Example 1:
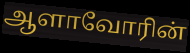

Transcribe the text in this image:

ஆளாவோரின்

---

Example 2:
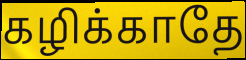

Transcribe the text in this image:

கழிக்காதே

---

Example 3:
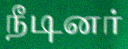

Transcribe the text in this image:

நீடினர்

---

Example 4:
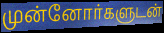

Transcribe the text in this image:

முன்னோர்களுடன்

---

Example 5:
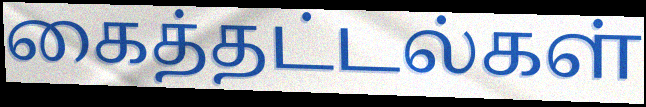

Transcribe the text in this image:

கைத்தட்டல்கள்